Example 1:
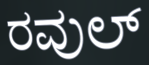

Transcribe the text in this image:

ರವುಲ್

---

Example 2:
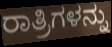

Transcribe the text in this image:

ರಾತ್ರಿಗಳನ್ನು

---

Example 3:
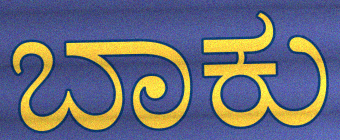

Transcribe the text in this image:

ಬಾಕು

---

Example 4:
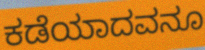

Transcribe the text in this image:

ಕಡೆಯಾದವನೂ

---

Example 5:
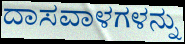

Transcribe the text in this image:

ದಾಸವಾಳಗಳನ್ನು